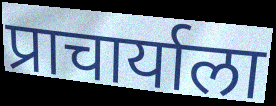
प्राचार्याला